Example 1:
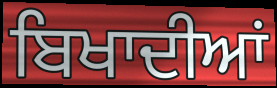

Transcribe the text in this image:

ਬਿਖਾਦੀਆਂ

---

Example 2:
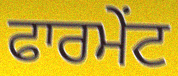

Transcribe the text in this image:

ਫਾਰਮੇਂਟ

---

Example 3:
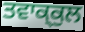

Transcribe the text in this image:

ਤਵਾਕ੍ਕੁਲ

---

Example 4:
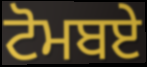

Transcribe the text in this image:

ਟੋਮਬਏ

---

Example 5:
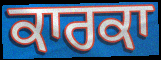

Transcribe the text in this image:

ਕਾਰਕਾ